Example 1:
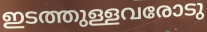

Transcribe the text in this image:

ഇടത്തുള്ളവരോടു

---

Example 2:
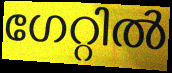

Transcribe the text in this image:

ഗേറ്റിൽ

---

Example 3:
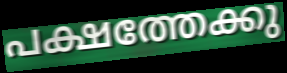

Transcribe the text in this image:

പക്ഷത്തേക്കു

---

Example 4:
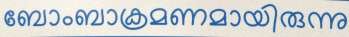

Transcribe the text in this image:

ബോംബാക്രമണമായിരുന്നു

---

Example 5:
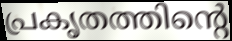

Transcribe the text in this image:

പ്രകൃതത്തിന്റെ